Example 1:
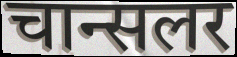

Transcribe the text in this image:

चान्सलर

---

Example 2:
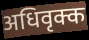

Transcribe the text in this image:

अधिवृक्क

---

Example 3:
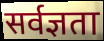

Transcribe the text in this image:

सर्वज्ञता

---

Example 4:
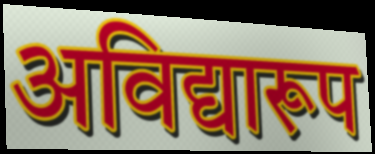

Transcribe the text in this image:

अविद्यारूप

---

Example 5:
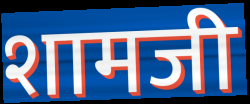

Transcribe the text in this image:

शामजी